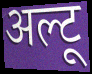
अल्टू